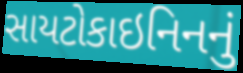
સાયટોકાઇનિનનું